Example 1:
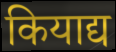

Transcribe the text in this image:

कियाद्य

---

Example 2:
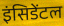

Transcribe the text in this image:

इंसिडेंटल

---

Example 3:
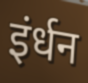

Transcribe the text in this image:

इंर्धन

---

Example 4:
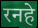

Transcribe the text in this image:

रनहे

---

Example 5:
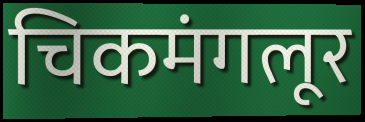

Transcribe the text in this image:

चिकमंगलूर